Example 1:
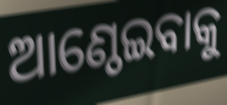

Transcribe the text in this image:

ଆଣ୍ଠେଇବାକୁ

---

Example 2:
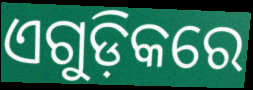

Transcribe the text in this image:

ଏଗୁଡ଼ିକରେ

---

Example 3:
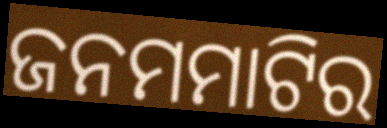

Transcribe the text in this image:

ଜନମମାଟିର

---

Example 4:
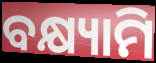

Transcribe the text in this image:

ବକ୍ଷ୍ୟାମି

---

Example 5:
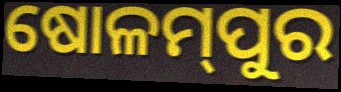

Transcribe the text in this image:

ଷୋଳମ୍‌ପୁର